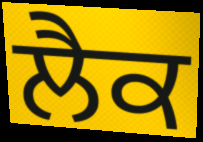
ਲੈਕ